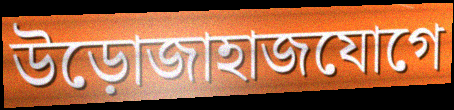
উড়োজাহাজযোগে